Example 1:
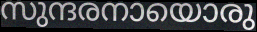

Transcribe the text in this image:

സുന്ദരനായൊരു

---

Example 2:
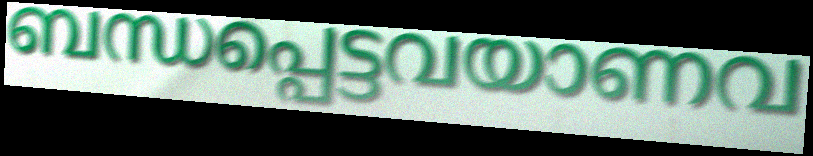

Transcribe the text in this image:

ബന്ധപ്പെട്ടവയാണവ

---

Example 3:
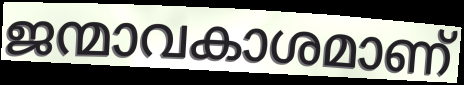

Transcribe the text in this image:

ജന്മാവകാശമാണ്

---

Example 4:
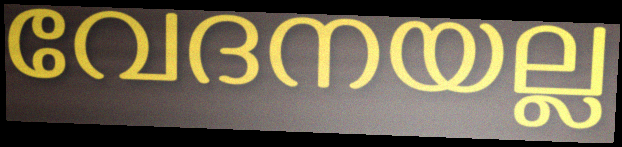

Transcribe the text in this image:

വേദനയല്ല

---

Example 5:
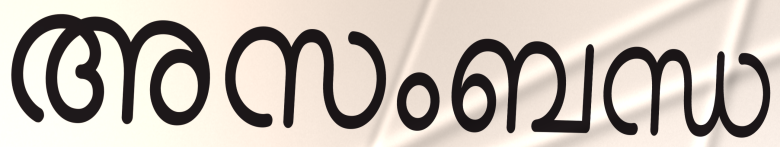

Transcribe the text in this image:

അസംബന്ധ